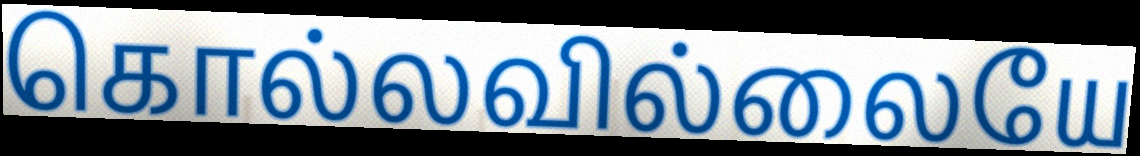
கொல்லவில்லையே